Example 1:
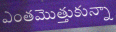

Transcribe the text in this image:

ఎంతమొత్తుకున్నా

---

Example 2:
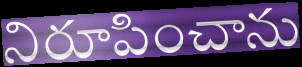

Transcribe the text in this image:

నిరూపించాను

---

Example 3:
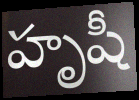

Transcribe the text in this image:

హృషీ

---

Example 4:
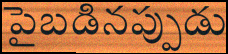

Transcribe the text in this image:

పైబడినప్పుడు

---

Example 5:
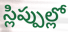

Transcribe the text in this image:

స్లిప్పుల్లో